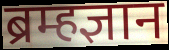
ब्रम्हज्ञान